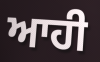
ਆਹੀ